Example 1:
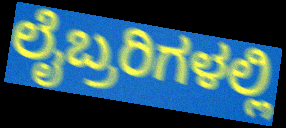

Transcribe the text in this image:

ಲೈಬ್ರರಿಗಳಲ್ಲಿ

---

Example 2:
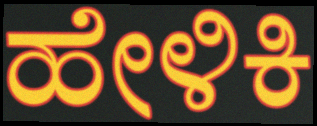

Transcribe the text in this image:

ಹೇಳಿಕಿ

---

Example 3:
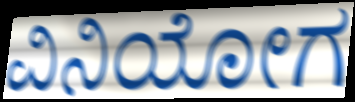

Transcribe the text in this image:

ವಿನಿಯೋಗ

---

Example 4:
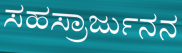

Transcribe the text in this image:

ಸಹಸ್ರಾರ್ಜುನನ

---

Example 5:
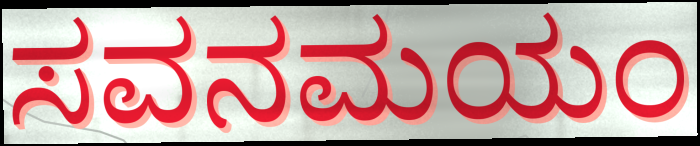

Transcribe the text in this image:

ಸವನಮಯಂ